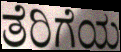
ತೆರಿಗೆಯ